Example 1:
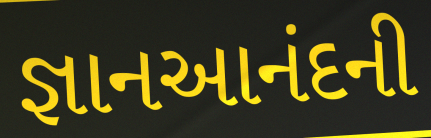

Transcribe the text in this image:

જ્ઞાનઆનંદની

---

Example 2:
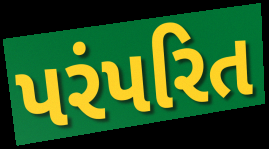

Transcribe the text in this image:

પરંપરિત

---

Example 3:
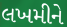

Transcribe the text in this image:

લખમીને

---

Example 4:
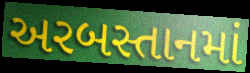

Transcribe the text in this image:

અરબસ્તાનમાં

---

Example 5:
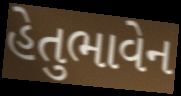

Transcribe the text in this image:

હેતુભાવેન